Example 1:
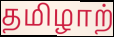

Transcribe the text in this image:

தமிழாற்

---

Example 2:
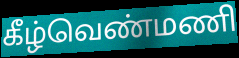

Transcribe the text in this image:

கீழ்வெண்மணி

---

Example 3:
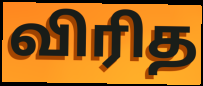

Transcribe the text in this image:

விரித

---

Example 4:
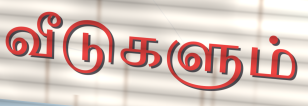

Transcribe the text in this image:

வீடுகளும்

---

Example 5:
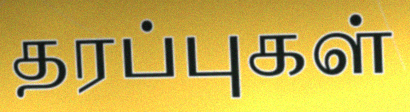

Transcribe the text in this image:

தரப்புகள்